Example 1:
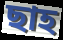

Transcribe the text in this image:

ছাহ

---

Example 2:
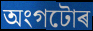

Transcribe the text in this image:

অংগটোৰ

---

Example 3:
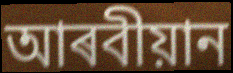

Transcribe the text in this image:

আৰবীয়ান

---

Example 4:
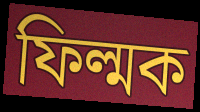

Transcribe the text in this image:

ফিল্মক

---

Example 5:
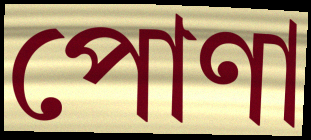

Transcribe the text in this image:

পোণা